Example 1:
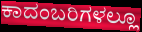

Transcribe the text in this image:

ಕಾದಂಬರಿಗಳಲ್ಲೂ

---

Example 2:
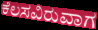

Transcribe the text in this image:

ಕೆಲಸವಿರುವಾಗ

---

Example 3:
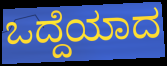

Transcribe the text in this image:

ಒದ್ದೆಯಾದ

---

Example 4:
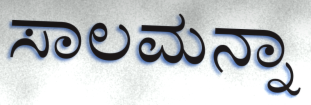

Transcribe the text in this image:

ಸಾಲಮನ್ನಾ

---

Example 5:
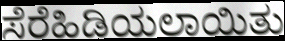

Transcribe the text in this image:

ಸೆರೆಹಿಡಿಯಲಾಯಿತು